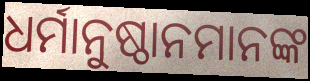
ଧର୍ମାନୁଷ୍ଠାନମାନଙ୍କ